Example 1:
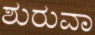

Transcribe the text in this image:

ಶುರುವಾ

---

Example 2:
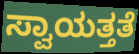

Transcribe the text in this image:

ಸ್ವಾಯತ್ತತೆ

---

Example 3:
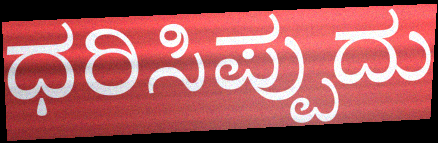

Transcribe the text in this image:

ಧರಿಸಿಪ್ಪುದು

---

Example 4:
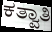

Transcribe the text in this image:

ಕತ್ವಾತಿ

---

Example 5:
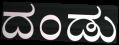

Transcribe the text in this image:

ದಂಡು